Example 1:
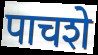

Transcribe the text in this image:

पाचशे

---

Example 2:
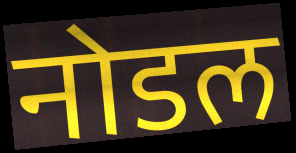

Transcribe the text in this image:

नोडल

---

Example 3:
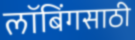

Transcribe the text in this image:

लॉबिंगसाठी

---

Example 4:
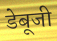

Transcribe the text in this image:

डेबूजी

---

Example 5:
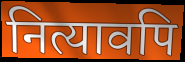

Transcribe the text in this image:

नित्यावपि